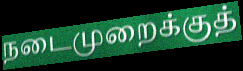
நடைமுறைக்குத்